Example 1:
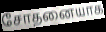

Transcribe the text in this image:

சோதனையாக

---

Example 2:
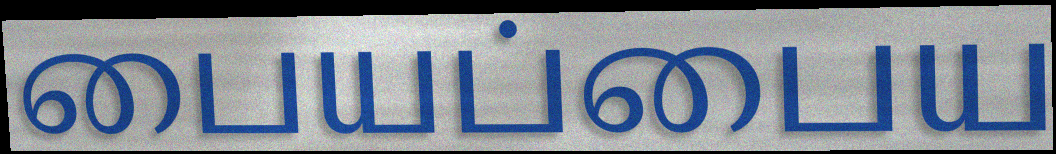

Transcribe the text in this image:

பையப்பைய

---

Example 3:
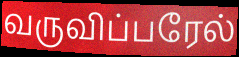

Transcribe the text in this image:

வருவிப்பரேல்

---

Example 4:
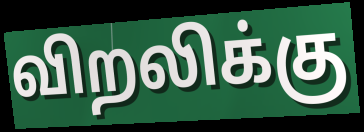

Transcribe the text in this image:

விறலிக்கு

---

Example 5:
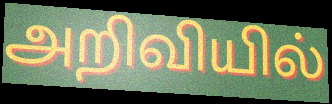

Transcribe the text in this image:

அறிவியில்